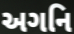
અગનિ